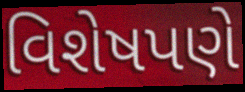
વિશેષપણે